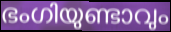
ഭംഗിയുണ്ടാവും